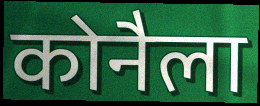
कोनैला